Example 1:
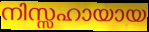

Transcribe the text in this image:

നിസ്സഹായായ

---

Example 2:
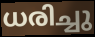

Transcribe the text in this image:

ധരിച്ചു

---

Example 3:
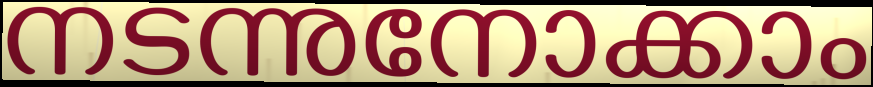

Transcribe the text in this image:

നടന്നുനോക്കാം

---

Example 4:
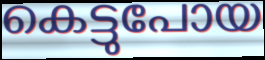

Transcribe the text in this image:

കെട്ടുപോയ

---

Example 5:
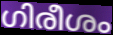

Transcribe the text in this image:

ഗിരീശം